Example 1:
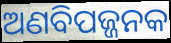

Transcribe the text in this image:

ଅଣବିପଜ୍ଜନକ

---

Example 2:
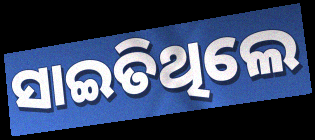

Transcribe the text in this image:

ସାଇତିଥିଲେ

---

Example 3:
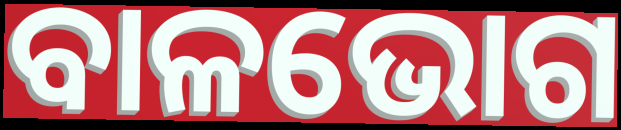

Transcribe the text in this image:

ବାଳଭୋଗ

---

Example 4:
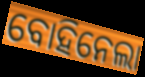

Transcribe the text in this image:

ବୋହିନେଲା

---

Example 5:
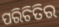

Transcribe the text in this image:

ପରିଚିତିର